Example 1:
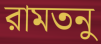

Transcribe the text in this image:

রামতনু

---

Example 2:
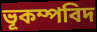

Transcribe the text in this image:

ভূকম্পবিদ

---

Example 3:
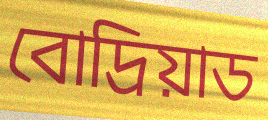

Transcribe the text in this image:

বোদ্রিয়াড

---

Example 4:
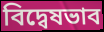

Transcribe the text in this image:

বিদ্বেষভাব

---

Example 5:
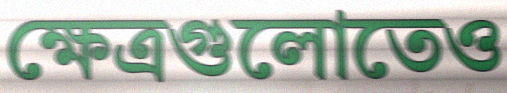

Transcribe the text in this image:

ক্ষেত্রগুলোতেও